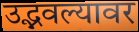
उद्भवल्यावर